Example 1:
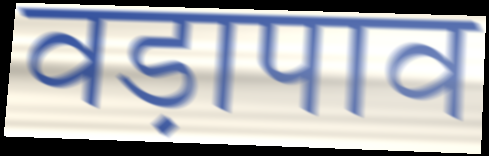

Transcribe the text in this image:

वड़ापाव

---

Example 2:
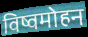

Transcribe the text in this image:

विष्वमोहन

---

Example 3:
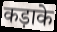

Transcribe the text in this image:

कड़ाके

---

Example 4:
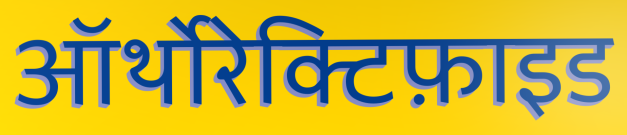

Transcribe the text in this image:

ऑर्थोरेक्टिफ़ाइड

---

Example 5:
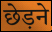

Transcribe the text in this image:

छेड़ने